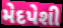
મેદપેશી